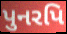
પુનરપિ